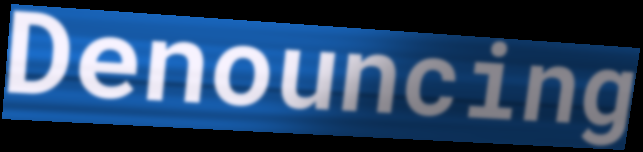
Denouncing